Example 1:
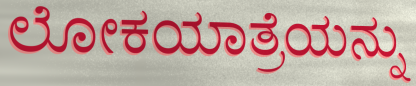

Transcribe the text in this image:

ಲೋಕಯಾತ್ರೆಯನ್ನು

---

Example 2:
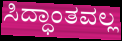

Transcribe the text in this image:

ಸಿದ್ಧಾಂತವಲ್ಲ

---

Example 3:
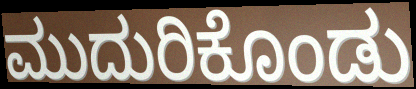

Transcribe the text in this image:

ಮುದುರಿಕೊಂಡು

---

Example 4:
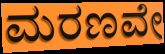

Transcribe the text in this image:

ಮರಣವೇ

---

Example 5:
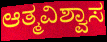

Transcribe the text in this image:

ಆತ್ಮವಿಶ್ವಾಸ